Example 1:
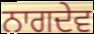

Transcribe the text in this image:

ਨਾਗਦੇਵ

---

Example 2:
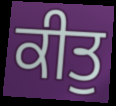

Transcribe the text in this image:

ਕੀਤੁ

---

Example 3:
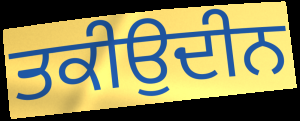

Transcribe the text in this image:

ਤਕੀਉਦੀਨ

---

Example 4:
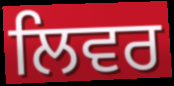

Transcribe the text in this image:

ਲਿਵਰ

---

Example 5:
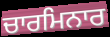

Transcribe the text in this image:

ਚਾਰਮਿਨਾਰ